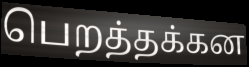
பெறத்தக்கன